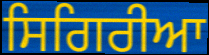
ਸਿਗਿਰੀਆ